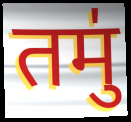
तमु॑